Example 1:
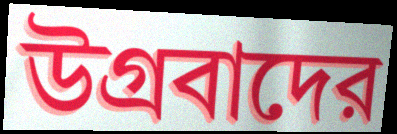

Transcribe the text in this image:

উগ্রবাদের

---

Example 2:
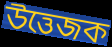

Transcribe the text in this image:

উত্তেজক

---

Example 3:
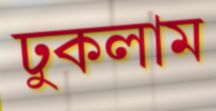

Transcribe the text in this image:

ঢুকলাম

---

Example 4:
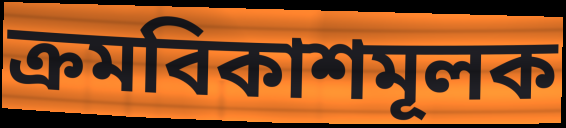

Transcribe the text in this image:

ক্রমবিকাশমূলক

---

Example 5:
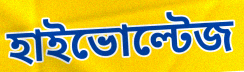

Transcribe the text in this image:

হাইভোল্টেজ